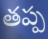
తప్ప